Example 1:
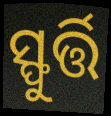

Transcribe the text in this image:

ସ୍ଫୁର୍ତ୍ତି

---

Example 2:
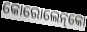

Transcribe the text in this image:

କୋରୋଲେନ୍‌କୋ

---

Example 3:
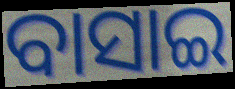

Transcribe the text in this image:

ବାସାଇ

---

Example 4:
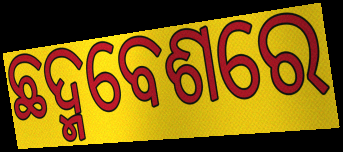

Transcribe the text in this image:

ଛଦ୍ମବେଶରେ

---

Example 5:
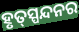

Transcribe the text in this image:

ହୃତ୍‌ସ୍ପନ୍ଦନର